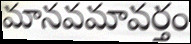
మానవమావర్తం